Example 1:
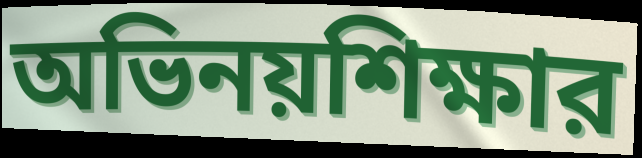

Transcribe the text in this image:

অভিনয়শিক্ষার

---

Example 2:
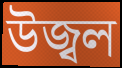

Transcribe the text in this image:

উজ্বল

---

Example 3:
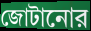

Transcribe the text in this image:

জোটানোর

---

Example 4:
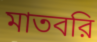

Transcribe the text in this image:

মাতবরি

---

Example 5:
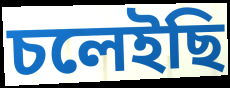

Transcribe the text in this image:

চলেইছি